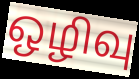
ஒழிவு